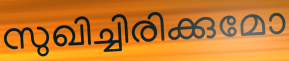
സുഖിച്ചിരിക്കുമോ